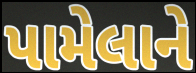
પામેલાને